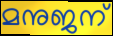
മനുജന്